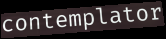
contemplator